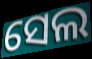
ସେଲ